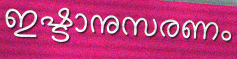
ഇഷ്ടാനുസരണം